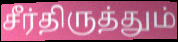
சீர்திருத்தும்